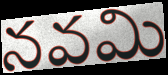
నవమి